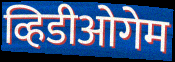
व्हिडीओगेम